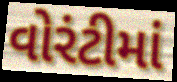
વોરંટીમાં